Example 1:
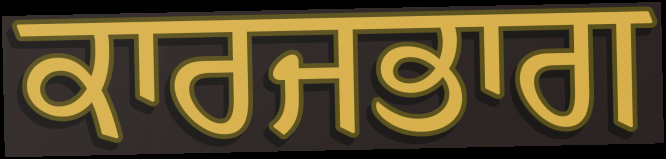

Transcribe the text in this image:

ਕਾਰਜਭਾਗ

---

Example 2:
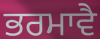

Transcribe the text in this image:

ਭਰਮਾਵੈ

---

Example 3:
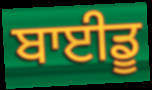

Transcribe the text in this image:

ਬਾਈਡੂ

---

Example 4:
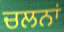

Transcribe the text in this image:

ਚਲਨਾਂ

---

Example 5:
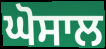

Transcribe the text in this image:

ਘੋਸਾਲ